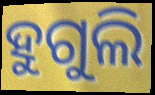
ହୁଗୁଲି